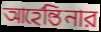
আর্হেন্তিনার